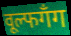
वूल्फगँग